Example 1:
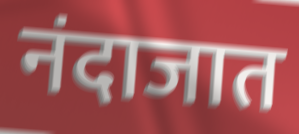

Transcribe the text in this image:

नंदाजात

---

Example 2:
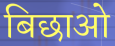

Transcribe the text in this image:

बिछाओ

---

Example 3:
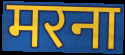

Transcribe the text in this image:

मरना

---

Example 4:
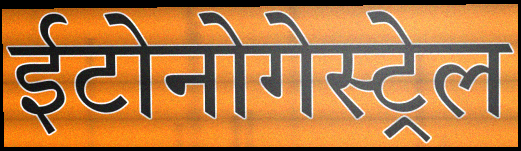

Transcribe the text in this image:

ईटोनोगेस्ट्रेल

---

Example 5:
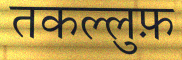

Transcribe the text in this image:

तकल्लुफ़